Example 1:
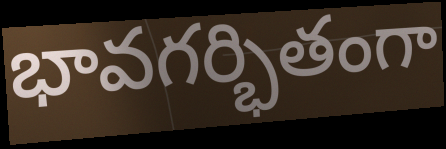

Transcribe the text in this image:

భావగర్భితంగా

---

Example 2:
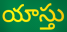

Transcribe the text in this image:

యాస్తు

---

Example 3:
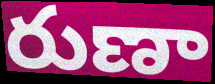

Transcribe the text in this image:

రుణా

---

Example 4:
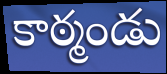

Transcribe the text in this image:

కాఠ్మండు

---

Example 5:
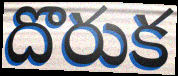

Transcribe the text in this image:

దొరుక